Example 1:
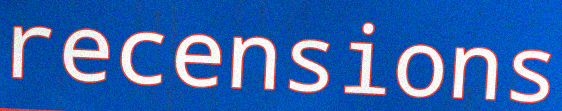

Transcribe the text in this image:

recensions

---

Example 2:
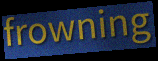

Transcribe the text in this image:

frowning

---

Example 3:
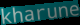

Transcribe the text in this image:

kharune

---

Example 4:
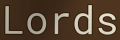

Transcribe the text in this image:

Lords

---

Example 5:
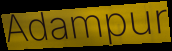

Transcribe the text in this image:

Adampur